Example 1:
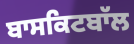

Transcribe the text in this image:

ਬਾਸਕਿਟਬਾੱਲ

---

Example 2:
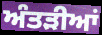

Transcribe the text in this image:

ਅੰਤੜੀਆਂ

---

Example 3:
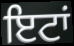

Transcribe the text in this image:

ਇਟਾਂ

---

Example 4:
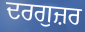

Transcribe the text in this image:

ਦਰਗੁਜ਼ਰ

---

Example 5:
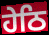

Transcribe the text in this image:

ਹੇਠਿ